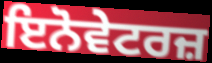
ਇਨੋਵੇਟਰਜ਼